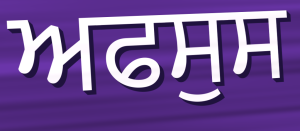
ਅਫਸੁਸ